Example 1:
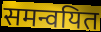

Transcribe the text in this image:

समन्वयित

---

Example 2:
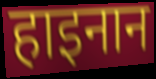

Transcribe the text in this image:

हाइनान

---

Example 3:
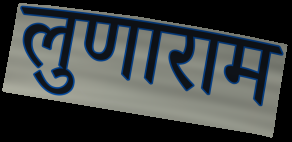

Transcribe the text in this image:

लुणाराम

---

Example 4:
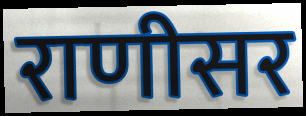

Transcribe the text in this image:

राणीसर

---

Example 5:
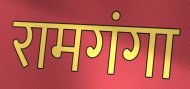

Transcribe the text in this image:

रामगंगा